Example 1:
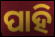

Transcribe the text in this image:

ପାହି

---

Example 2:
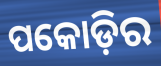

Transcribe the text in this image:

ପକୋଡ଼ିର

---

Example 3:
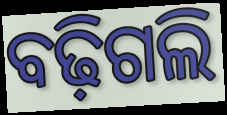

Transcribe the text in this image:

ବଢ଼ିଗଲି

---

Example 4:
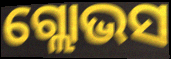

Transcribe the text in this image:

ଗ୍ଲୋଭସ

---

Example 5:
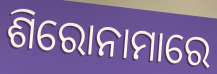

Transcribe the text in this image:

ଶିରୋନାମାରେ